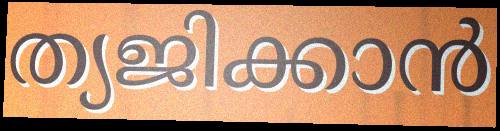
ത്യജിക്കാൻ